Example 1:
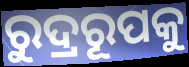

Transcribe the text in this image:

ରୁଦ୍ରରୂପକୁ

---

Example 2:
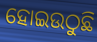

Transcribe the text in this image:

ହୋଇଉଠୁଛି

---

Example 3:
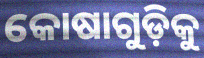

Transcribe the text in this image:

କୋଷାଗୁଡ଼ିକୁ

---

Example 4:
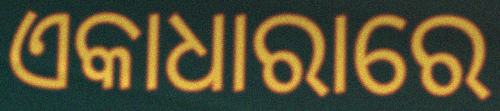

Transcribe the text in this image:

ଏକାଧାରାରେ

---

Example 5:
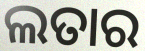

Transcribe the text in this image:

ଲତାର